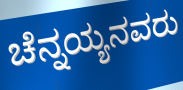
ಚೆನ್ನಯ್ಯನವರು